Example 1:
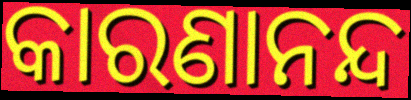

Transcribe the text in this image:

କାରଣାନନ୍ଦ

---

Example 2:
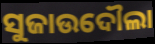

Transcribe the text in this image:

ସୁଜାଉଦୌଲା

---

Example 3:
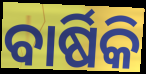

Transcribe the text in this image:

ବାର୍ଷିକି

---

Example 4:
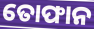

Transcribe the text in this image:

ତୋଫାନ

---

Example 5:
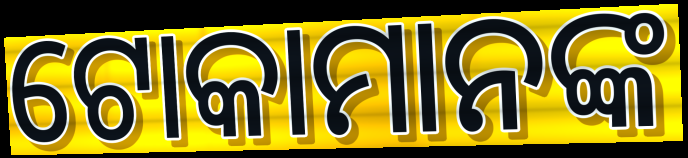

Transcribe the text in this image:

ଟୋକାମାନଙ୍କ